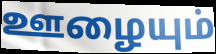
ஊழையும்